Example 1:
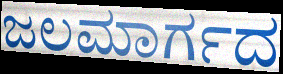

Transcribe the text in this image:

ಜಲಮಾರ್ಗದ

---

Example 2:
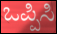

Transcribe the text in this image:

ಒಪ್ಪಿಸಿ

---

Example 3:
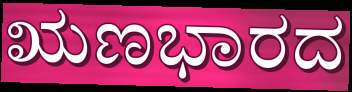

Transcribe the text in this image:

ಋಣಭಾರದ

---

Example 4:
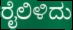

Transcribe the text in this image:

ರೈಲಿಳಿದು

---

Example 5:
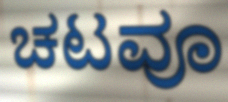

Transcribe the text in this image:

ಚಟವೂ